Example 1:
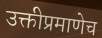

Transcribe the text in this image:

उक्तीप्रमाणेच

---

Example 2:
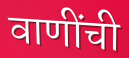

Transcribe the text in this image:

वाणींची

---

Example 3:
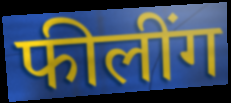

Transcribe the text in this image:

फीलींग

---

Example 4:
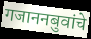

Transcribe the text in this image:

गजाननबुवांचे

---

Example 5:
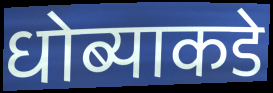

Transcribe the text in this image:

धोब्याकडे